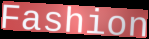
Fashion